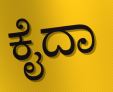
ಕೈದಾ